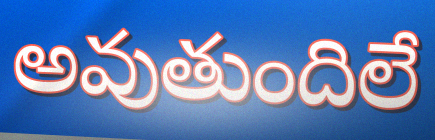
అవుతుందిలే